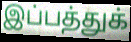
இப்பத்துக்